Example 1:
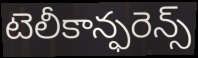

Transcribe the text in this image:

టెలీకాన్ఫరెన్స్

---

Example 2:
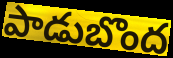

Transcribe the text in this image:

పాడుబొంద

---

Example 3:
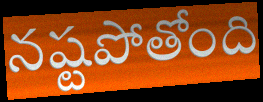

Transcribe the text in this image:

నష్టపోతోంది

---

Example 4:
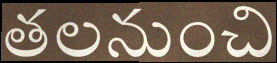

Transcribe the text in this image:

తలనుంచి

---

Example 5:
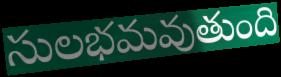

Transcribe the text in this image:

సులభమవుతుంది